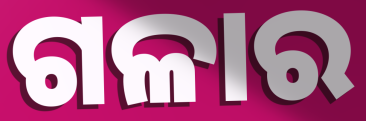
ଗଳାର